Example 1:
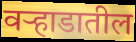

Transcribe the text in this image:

वर्‍हाडातील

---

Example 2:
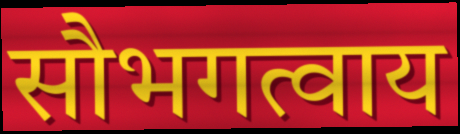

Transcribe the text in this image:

सौभगत्वाय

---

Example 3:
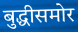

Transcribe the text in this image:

बुद्धीसमोर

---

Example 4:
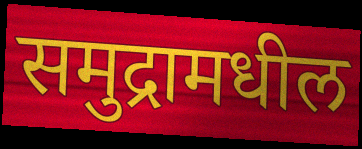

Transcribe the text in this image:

समुद्रामधील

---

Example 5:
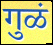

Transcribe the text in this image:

गुळं